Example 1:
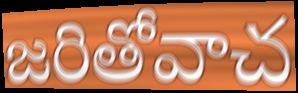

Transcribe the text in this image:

జరితోవాచ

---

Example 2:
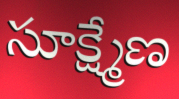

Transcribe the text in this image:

సూక్ష్మేణ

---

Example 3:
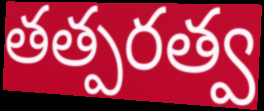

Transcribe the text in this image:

తత్పరత్వ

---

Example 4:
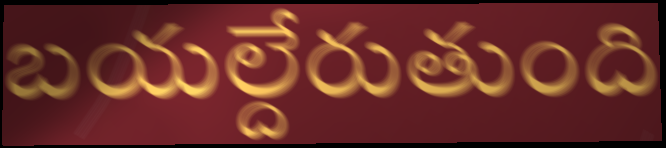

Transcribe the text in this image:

బయల్దేరుతుంది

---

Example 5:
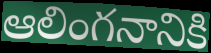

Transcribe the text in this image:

ఆలింగనానికి